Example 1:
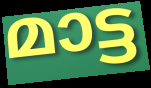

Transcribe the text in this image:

മാട്ട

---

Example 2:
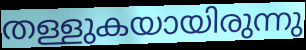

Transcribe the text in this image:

തള്ളുകയായിരുന്നു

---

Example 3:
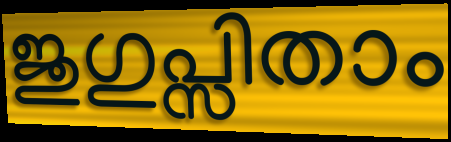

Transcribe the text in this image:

ജുഗുപ്സിതാം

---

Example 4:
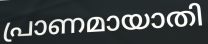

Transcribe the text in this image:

പ്രാണമായാതി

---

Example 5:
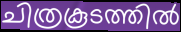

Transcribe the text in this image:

ചിത്രകൂടത്തിൽ